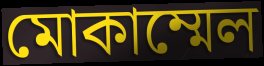
মোকাম্মেল